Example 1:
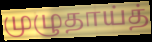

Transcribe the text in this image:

முழுதாய்த்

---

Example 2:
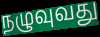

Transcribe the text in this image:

நழுவுவது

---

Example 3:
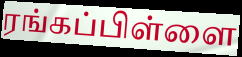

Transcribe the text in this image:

ரங்கப்பிள்ளை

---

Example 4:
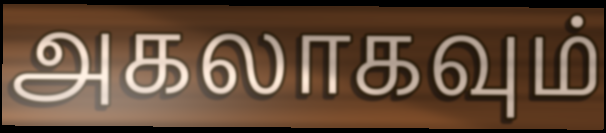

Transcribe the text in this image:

அகலாகவும்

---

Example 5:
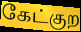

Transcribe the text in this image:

கேட்குற